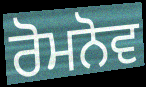
ਰੋਮਨੋਵ